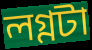
লগ্নটা